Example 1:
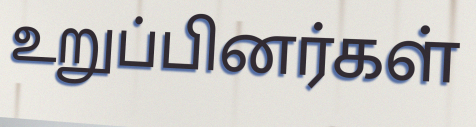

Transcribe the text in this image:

உறுப்பினர்கள்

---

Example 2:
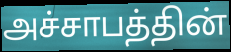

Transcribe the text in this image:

அச்சாபத்தின்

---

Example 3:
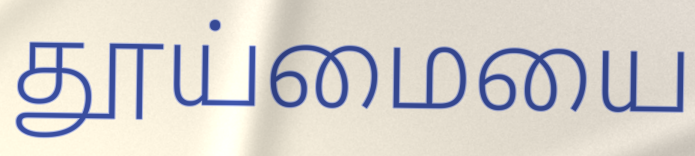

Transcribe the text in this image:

தூய்மையை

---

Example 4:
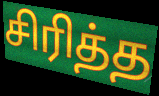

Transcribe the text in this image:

சிரித்த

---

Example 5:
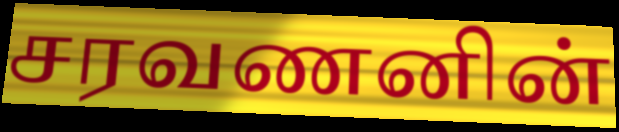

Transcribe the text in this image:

சரவணனின்